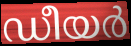
ഡീയർ